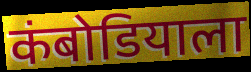
कंबोडियाला